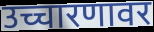
उच्चारणावर